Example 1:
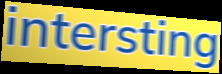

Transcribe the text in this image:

intersting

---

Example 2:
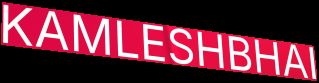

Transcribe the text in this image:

KAMLESHBHAI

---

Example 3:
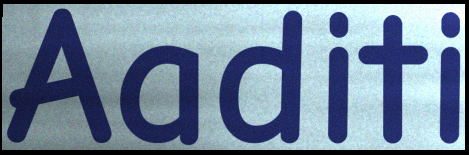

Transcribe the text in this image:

Aaditi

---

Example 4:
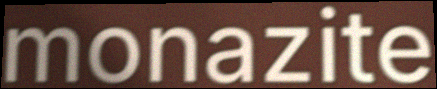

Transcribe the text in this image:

monazite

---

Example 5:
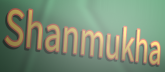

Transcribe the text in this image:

Shanmukha